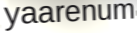
yaarenum